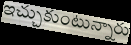
ఇచ్చుకుంటున్నారు